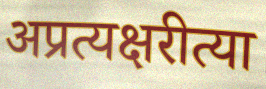
अप्रत्यक्षरीत्या